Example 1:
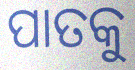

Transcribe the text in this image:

ପାତକୁ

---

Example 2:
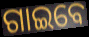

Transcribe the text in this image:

ଗାଇବେ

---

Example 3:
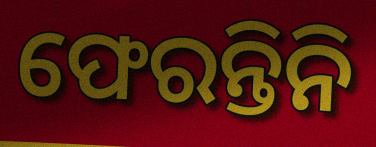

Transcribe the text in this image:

ଫେରନ୍ତିନି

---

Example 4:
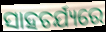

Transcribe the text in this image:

ସାହଚର୍ଯ୍ୟରେ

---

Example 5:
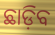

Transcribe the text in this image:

ଛାଡ଼ିବ